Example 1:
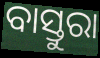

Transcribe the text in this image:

ବାସ୍ତୁରା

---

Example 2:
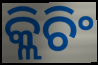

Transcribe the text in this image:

କ୍ଲିଚିଂ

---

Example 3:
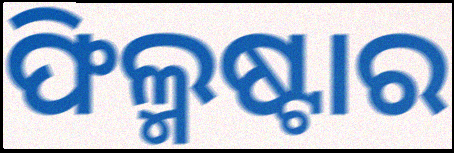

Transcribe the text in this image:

ଫିଲ୍ମଷ୍ଟାର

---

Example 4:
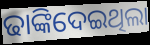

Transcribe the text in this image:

ଢାଙ୍କିଦେଇଥିଲା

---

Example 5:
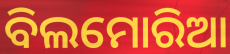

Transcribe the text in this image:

ବିଲମୋରିଆ